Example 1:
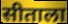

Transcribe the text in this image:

सीताला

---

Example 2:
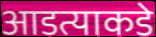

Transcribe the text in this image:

आडत्याकडे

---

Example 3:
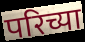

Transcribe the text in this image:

परिच्या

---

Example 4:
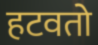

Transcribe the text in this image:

हटवतो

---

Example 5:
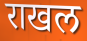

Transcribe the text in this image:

राखल